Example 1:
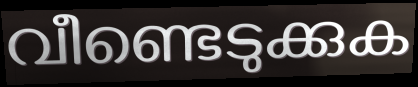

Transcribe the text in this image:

വീണ്ടെടുക്കുക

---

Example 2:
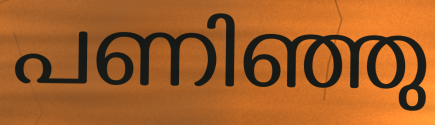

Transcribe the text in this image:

പണിഞ്ഞു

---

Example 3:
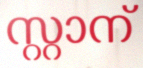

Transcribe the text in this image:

സ്റ്റാന്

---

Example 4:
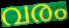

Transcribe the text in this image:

വരം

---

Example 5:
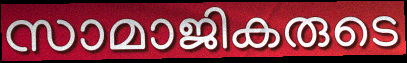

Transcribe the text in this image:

സാമാജികരുടെ